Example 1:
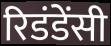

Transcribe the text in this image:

रिडंडेंसी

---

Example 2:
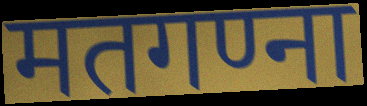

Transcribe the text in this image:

मतगण्ना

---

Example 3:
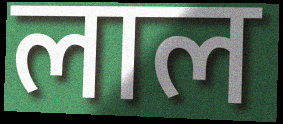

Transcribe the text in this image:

लाल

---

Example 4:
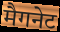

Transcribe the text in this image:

मैगनेट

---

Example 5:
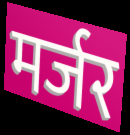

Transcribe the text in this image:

मर्जर